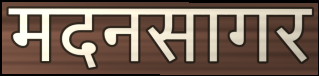
मदनसागर